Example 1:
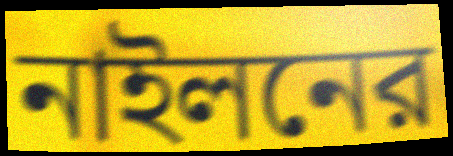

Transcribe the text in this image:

নাইলনের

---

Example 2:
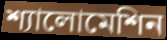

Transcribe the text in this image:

শ্যালোমেশিন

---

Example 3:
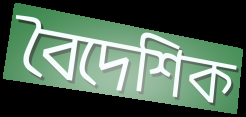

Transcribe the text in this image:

বৈদেশিক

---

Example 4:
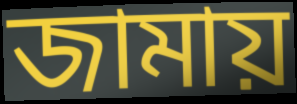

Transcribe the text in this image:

জামায়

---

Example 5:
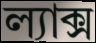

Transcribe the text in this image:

ল্যাক্স